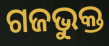
ଗଜଭୁକ୍ତ